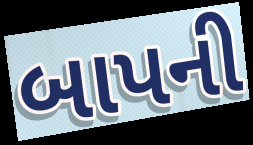
બાપની